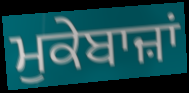
ਮੁਕੇਬਾਜ਼ਾਂ